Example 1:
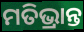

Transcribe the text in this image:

ମତିଭ୍ରାନ୍ତ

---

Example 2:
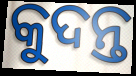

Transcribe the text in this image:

କୁଦନ୍ତ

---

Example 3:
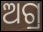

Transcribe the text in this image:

ଅଗ୍ର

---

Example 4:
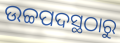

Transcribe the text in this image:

ଉଚ୍ଚପଦସ୍ଥଠାରୁ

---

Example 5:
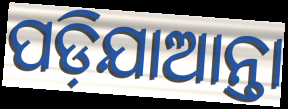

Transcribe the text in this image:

ପଡ଼ିଯାଆନ୍ତା